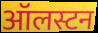
ऑलस्टन